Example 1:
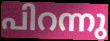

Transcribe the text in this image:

പിറന്നു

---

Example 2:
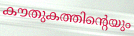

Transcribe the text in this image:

കൗതുകത്തിന്റെയും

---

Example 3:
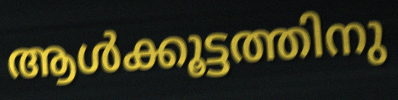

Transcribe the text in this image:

ആൾക്കൂട്ടത്തിനു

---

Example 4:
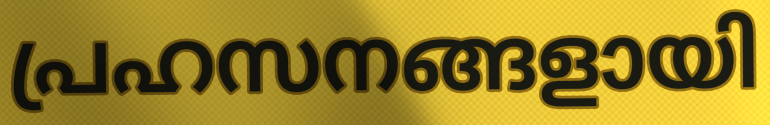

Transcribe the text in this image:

പ്രഹസനങ്ങളായി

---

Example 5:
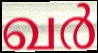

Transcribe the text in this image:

ഖർ